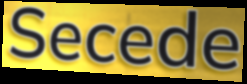
Secede